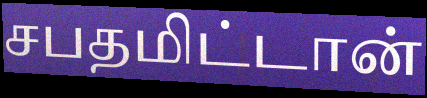
சபதமிட்டான்